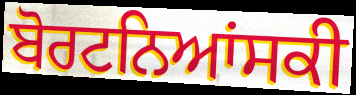
ਬੋਰਟਨਿਆਂਸਕੀ